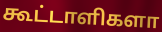
கூட்டாளிகளா